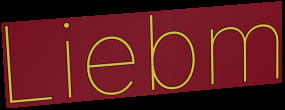
Liebm